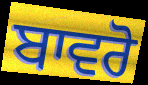
ਬਾਵਰੋ